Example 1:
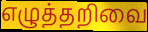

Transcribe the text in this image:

எழுத்தறிவை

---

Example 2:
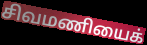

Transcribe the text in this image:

சிவமணியைக்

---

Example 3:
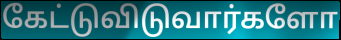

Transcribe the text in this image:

கேட்டுவிடுவார்களோ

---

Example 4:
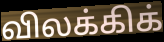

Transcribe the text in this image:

விலக்கிக்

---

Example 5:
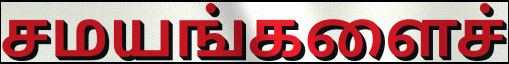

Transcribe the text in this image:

சமயங்களைச்